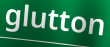
glutton